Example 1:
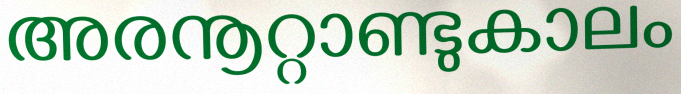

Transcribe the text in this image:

അരനൂറ്റാണ്ടുകാലം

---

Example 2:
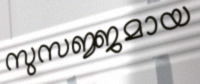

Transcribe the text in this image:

സുസജ്ജമായ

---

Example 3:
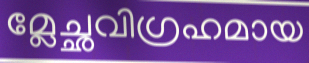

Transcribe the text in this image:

മ്ലേച്ഛവിഗ്രഹമായ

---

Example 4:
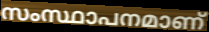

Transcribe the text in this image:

സംസ്ഥാപനമാണ്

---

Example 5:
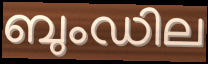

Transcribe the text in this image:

ബുംഡില